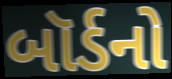
બૉર્ડનો